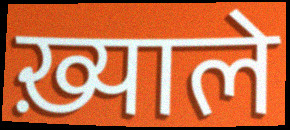
ख़्याले